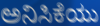
ಅನಿಸಿಕೆಯು